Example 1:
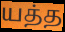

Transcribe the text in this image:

யத்த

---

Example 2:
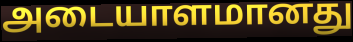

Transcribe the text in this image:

அடையாளமானது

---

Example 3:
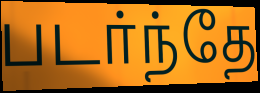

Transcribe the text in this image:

படர்ந்தே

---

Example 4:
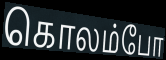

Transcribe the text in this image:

கொலம்போ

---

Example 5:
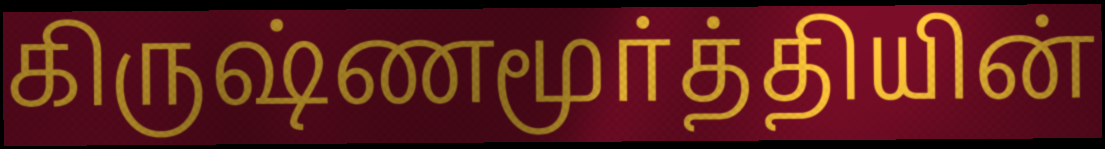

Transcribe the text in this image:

கிருஷ்ணமூர்த்தியின்